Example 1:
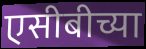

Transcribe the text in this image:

एसीबीच्या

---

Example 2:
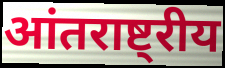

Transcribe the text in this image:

आंतराष्ट्रीय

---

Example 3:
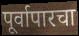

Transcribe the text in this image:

पूर्वापारचा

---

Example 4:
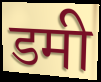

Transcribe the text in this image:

डमी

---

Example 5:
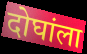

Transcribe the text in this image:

दोघांला